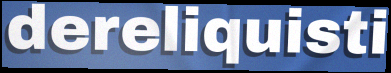
dereliquisti